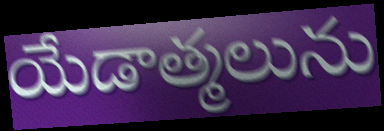
యేడాత్మలును